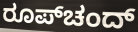
ರೂಪ್‌ಚಂದ್